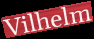
Vilhelm